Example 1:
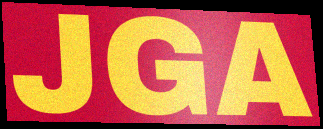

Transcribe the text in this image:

JGA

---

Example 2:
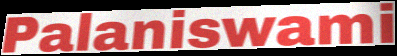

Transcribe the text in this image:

Palaniswami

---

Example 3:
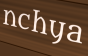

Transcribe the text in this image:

nchya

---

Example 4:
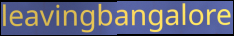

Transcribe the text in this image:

leavingbangalore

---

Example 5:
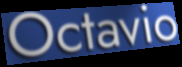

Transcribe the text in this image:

Octavio